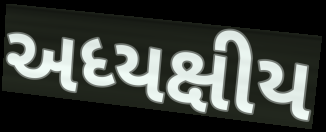
અધ્યક્ષીય